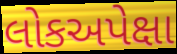
લોકઅપેક્ષા